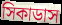
সিকাডাস